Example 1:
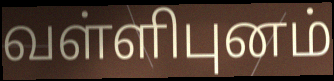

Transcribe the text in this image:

வள்ளிபுனம்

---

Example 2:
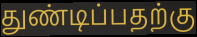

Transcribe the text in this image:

துண்டிப்பதற்கு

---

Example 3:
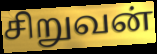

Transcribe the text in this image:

சிறுவன்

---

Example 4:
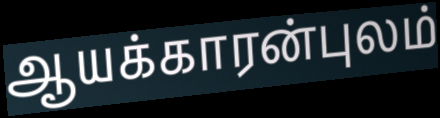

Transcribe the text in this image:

ஆயக்காரன்புலம்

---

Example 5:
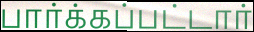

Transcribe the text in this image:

பார்க்கப்பட்டார்